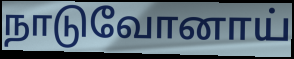
நாடுவோனாய்